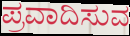
ಪ್ರವಾದಿಸುವ